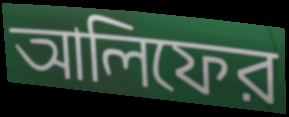
আলিফের